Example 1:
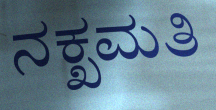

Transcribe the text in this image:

ನಕ್ಖಮತಿ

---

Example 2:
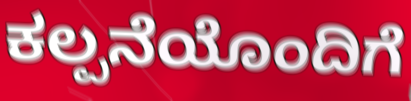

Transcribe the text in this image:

ಕಲ್ಪನೆಯೊಂದಿಗೆ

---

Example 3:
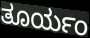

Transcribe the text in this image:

ತೂರ್ಯಂ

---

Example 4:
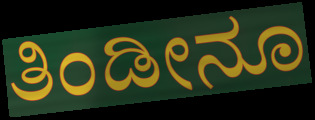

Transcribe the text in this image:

ತಿಂಡೀನೂ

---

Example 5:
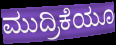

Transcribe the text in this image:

ಮುದ್ರಿಕೆಯೂ